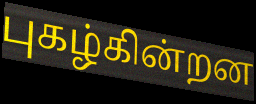
புகழ்கின்றன